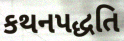
કથનપદ્ધતિ